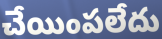
చేయింపలేదు